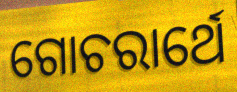
ଗୋଚରାର୍ଥେ